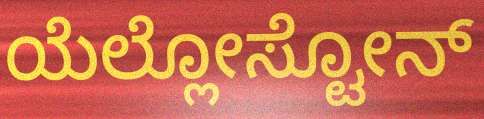
ಯೆಲ್ಲೋಸ್ಟೋನ್